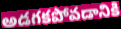
అడగకపోవడానికి